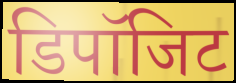
डिपॉजिट